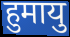
हुमायु